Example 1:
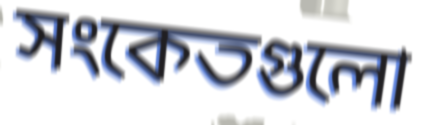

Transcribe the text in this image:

সংকেতগুলো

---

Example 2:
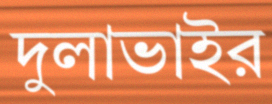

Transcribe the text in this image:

দুলাভাইর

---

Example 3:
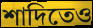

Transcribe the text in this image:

শাদিতেও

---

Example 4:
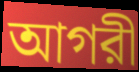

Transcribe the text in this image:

আগরী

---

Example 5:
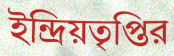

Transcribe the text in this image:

ইন্দ্রিয়তৃপ্তির